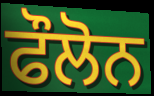
ਫੌਲੋਨ